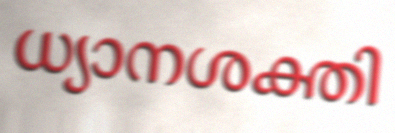
ധ്യാനശക്തി